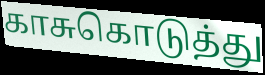
காசுகொடுத்து